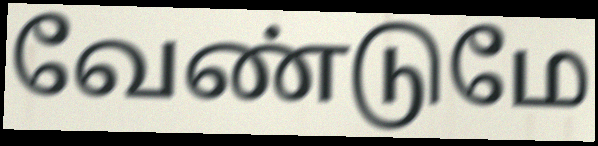
வேண்டுமே